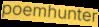
poemhunter